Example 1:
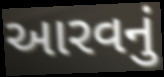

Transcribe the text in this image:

આરવનું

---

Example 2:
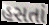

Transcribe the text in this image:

હસતાં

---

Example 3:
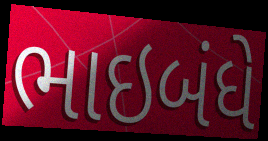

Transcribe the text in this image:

ભાઇબંધે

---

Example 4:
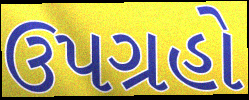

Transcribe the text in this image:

ઉપગ્રહો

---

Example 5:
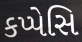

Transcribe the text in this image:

કપ્પેસિ